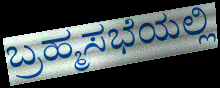
ಬ್ರಹ್ಮಸಭೆಯಲ್ಲಿ